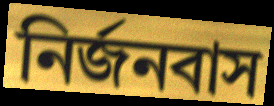
নির্জনবাস